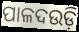
ପାଳଦଉଡ଼ି